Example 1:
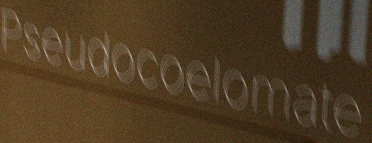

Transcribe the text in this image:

Pseudocoelomate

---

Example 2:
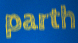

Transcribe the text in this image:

parth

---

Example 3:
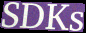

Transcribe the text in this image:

SDKs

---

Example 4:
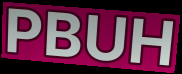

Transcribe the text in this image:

PBUH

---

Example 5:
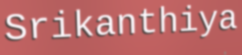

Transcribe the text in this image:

Srikanthiya